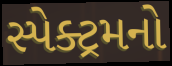
સ્પેક્ટ્રમનો